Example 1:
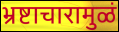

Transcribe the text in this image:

भ्रष्टाचारामुळं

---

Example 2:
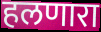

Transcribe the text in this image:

हलणारा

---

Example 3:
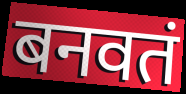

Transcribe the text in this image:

बनवतं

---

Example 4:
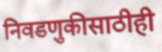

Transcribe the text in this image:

निवडणुकीसाठीही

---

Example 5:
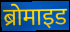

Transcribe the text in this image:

ब्रोमाइड